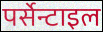
पर्सेन्टाइल